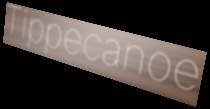
Tippecanoe